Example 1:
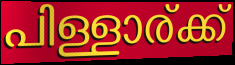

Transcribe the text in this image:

പിള്ളാര്ക്ക്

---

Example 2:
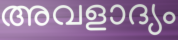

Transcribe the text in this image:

അവളാദ്യം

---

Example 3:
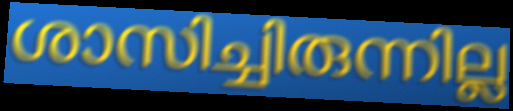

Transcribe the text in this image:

ശാസിച്ചിരുന്നില്ല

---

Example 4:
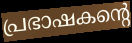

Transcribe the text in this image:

പ്രഭാഷകന്റെ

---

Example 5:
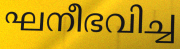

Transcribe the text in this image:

ഘനീഭവിച്ച